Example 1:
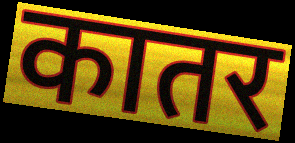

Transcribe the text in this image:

कातर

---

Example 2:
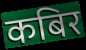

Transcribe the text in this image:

कबिर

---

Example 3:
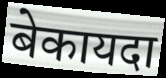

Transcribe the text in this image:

बेकायदा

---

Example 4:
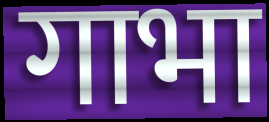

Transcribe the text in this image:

गाभा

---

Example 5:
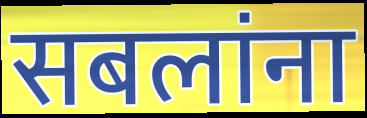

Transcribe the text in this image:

सबलांना